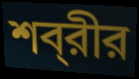
শব্‌রীর